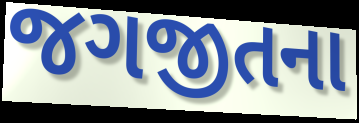
જગજીતના